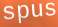
spus